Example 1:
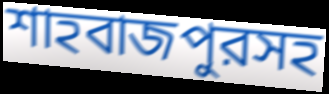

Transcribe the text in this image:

শাহবাজপুরসহ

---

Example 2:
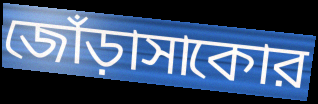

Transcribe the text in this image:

জোঁড়াসাকোর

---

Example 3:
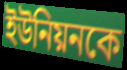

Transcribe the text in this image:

ইউনিয়নকে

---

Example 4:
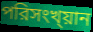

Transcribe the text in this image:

পরিসংখ্য়ান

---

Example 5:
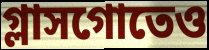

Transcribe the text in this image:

গ্লাসগোতেও